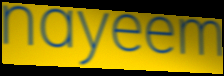
nayeem